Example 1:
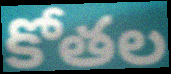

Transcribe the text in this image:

కోతల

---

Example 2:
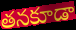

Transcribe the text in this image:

తనకూడా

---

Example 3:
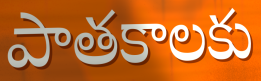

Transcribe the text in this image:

పాతకాలకు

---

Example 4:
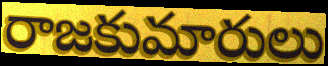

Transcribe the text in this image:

రాజకుమారులు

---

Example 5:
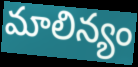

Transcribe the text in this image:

మాలిన్యం